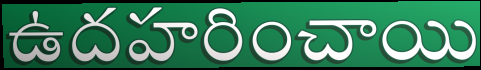
ఉదహరించాయి